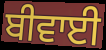
ਬੀਵਾਈ